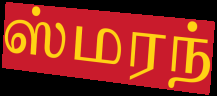
ஸ்மரந்